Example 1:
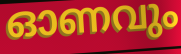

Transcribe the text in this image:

ഓണവും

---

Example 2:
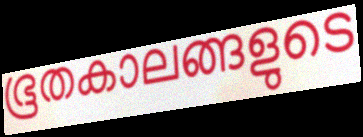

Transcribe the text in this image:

ഭൂതകാലങ്ങളുടെ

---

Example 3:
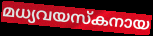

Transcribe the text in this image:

മധ്യവയസ്കനായ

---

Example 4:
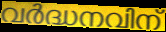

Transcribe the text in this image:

വർദ്ധനവിന്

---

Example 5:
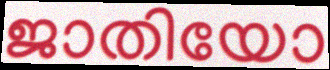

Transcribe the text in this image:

ജാതിയോ